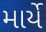
માર્યે